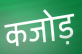
कजोड़